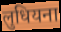
लुधियना